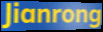
Jianrong